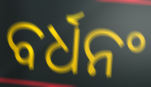
ବର୍ଧନଂ